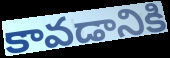
కావడానికి